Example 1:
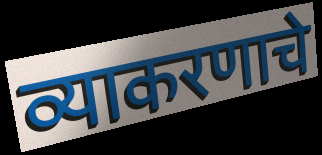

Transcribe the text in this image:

व्याकरणाचे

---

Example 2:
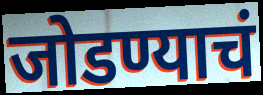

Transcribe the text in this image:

जोडण्याचं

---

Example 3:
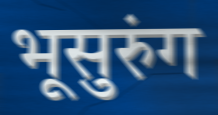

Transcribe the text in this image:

भूसुरुंग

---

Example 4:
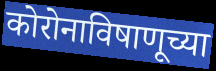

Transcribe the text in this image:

कोरोनाविषाणूच्या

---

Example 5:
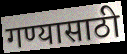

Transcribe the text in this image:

गण्यासाठी